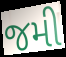
જમી